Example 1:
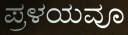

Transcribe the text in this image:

ಪ್ರಳಯವೂ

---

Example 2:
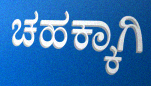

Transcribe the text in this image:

ಚಹಕ್ಕಾಗಿ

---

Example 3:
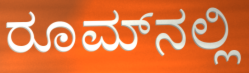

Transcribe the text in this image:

ರೂಮ್‌ನಲ್ಲಿ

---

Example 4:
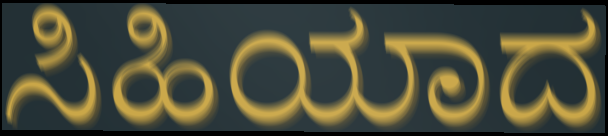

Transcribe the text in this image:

ಸಿಹಿಯಾದ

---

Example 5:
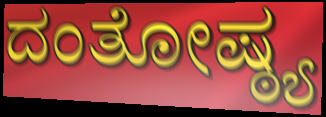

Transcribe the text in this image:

ದಂತೋಷ್ಠ್ಯ